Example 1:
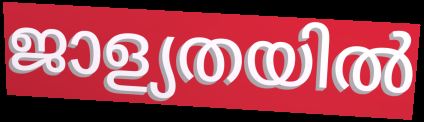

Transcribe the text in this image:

ജാള്യതയിൽ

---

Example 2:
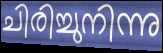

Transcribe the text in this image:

ചിരിച്ചുനിന്നു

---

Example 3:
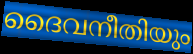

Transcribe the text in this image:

ദൈവനീതിയും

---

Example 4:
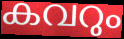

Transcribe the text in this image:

കവറും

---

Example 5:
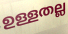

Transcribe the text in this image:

ഉള്ളതല്ല